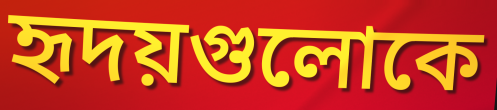
হৃদয়গুলোকে